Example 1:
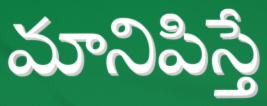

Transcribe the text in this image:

మానిపిస్తే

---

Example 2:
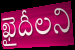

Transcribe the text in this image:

ఖైదీలని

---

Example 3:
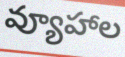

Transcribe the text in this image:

వ్యూహాల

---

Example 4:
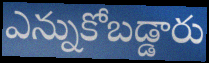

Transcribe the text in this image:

ఎన్నుకోబడ్డారు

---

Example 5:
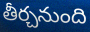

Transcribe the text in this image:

తీర్చనుంది